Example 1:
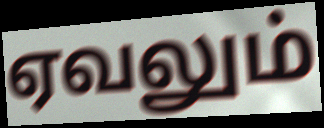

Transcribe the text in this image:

ஏவலும்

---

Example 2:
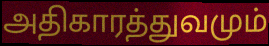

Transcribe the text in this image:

அதிகாரத்துவமும்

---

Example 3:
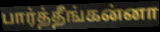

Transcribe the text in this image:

பார்த்தீங்கன்னா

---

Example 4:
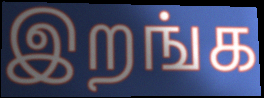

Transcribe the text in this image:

இறங்க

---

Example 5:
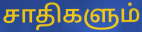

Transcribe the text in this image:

சாதிகளும்